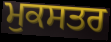
ਮੁਕਸਤਰ